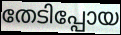
തേടിപ്പോയ